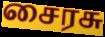
சைரசு